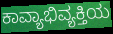
ಕಾವ್ಯಾಭಿವ್ಯಕ್ತಿಯ